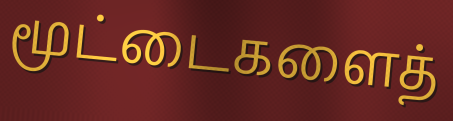
மூட்டைகளைத்